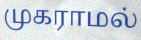
முகராமல்